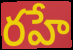
రహే